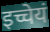
इच्चेयं